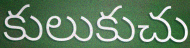
కులుకుచు